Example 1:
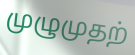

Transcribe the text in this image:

முழுமுதற்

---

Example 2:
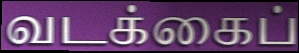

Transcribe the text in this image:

வடக்கைப்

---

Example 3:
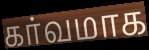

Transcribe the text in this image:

கர்வமாக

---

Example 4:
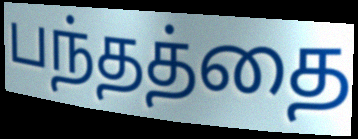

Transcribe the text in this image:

பந்தத்தை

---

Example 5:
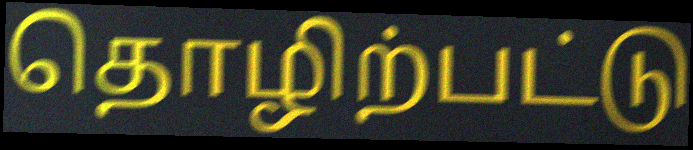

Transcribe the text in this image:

தொழிற்பட்டு